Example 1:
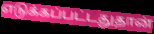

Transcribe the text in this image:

எடுக்கப்பட்டதுதான்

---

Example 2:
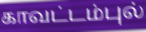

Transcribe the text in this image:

காவட்டம்புல்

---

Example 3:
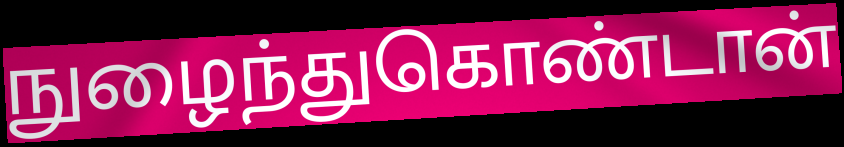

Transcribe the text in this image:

நுழைந்துகொண்டான்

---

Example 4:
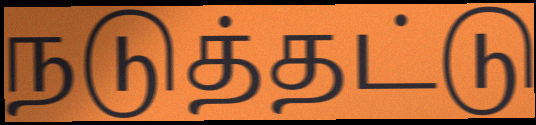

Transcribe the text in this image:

நடுத்தட்டு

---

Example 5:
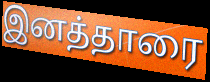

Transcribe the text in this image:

இனத்தாரை